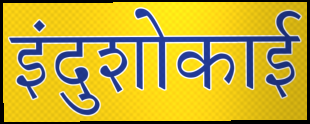
इंदुशोकाई